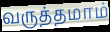
வருத்தமாம்